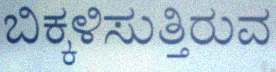
ಬಿಕ್ಕಳಿಸುತ್ತಿರುವ